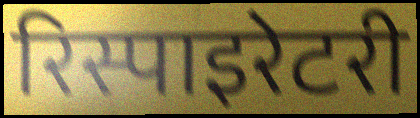
रिस्पाइरेटरी